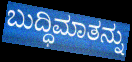
ಬುದ್ಧಿಮಾತನ್ನು